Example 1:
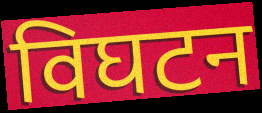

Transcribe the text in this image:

विघटन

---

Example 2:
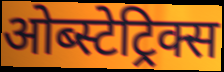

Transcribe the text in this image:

ओब्स्टेट्रिक्स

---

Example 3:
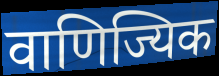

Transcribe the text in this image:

वाणिज्यिक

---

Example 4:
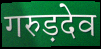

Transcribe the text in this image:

गरुड़देव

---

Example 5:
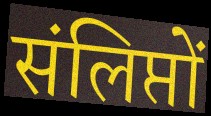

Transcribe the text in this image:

संलिप्तों